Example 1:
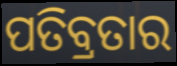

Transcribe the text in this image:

ପତିବ୍ରତାର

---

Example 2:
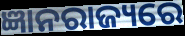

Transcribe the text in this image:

ଜ୍ଞାନରାଜ୍ୟରେ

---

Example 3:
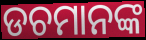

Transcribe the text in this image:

ଡଚମାନଙ୍କ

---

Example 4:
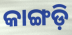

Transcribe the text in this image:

କାଙ୍ଗଡ଼ି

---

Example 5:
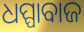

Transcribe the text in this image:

ଧପ୍ପାବାଜ